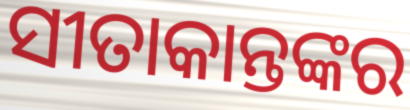
ସୀତାକାନ୍ତଙ୍କର